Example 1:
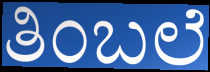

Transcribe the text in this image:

ತಿಂಬಲೆ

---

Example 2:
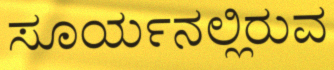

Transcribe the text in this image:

ಸೂರ್ಯನಲ್ಲಿರುವ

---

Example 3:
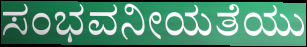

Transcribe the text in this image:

ಸಂಭವನೀಯತೆಯು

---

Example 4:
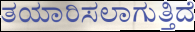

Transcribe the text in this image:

ತಯಾರಿಸಲಾಗುತ್ತಿದೆ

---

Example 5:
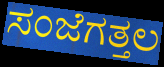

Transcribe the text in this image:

ಸಂಜೆಗತ್ತಲ